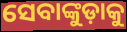
ସେବାଙ୍କୁଡ଼ାକୁ